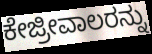
ಕೇಜ್ರೀವಾಲರನ್ನು